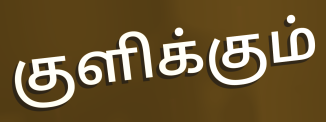
குளிக்கும்